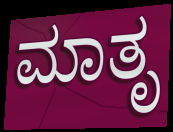
ಮಾತೃ